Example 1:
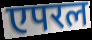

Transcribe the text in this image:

एपरल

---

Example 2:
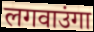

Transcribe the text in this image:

लगवाउंगा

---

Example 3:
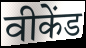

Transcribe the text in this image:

वीकेंड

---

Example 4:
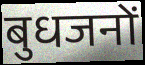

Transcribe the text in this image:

बुधजनों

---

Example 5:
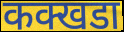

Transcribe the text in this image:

कक्खडा